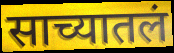
साच्यातलं